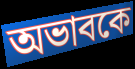
অভাবকে